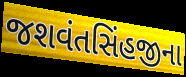
જશવંતસિંહજીના